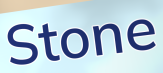
Stone